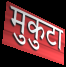
मुकुटा